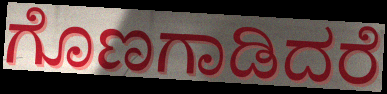
ಗೊಣಗಾಡಿದರೆ